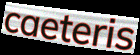
caeteris